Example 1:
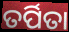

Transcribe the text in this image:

ତର୍ପିତା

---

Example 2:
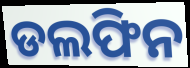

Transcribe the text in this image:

ଡଲଫିନ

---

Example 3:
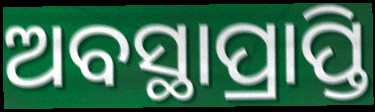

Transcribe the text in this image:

ଅବସ୍ଥାପ୍ରାପ୍ତି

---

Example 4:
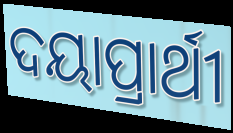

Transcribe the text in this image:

ଦୟାପ୍ରାର୍ଥୀ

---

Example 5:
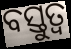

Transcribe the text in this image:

ବସ୍ତୁତ୍ବ